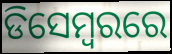
ଡିସେମ୍ବରରେ